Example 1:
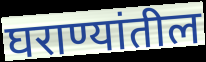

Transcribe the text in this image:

घराण्यांतील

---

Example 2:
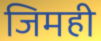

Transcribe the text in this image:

जिमही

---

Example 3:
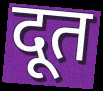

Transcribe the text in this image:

दूत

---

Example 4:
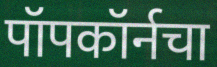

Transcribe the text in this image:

पॉपकॉर्नचा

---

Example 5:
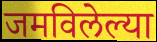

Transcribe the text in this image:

जमविलेल्या